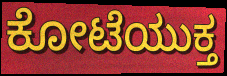
ಕೋಟೆಯುಕ್ತ